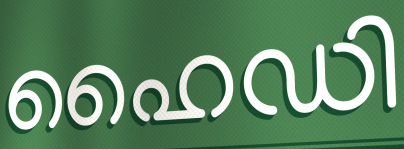
ഹൈഡി